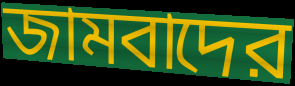
জামবাদের